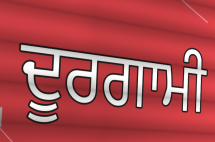
ਦੂਰਗਾਮੀ